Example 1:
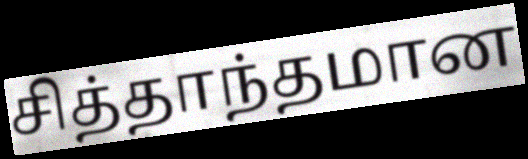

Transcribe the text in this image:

சித்தாந்தமான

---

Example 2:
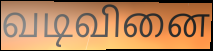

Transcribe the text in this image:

வடிவினை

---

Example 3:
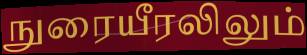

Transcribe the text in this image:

நுரையீரலிலும்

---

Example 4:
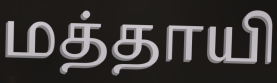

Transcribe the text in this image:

மத்தாயி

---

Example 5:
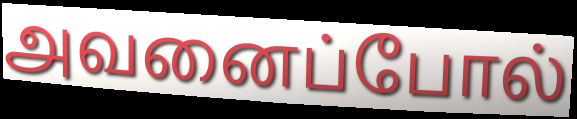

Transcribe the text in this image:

அவனைப்போல்